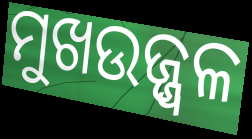
ମୁଖଉଜ୍ଜ୍ୱଳ